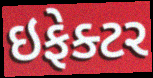
ઇફેક્ટર